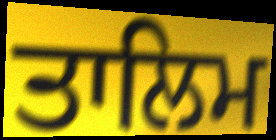
ਤਾਲਿਮ